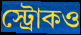
স্ট্রোকও